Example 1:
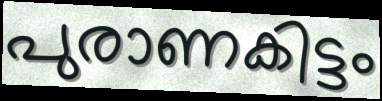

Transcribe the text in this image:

പുരാണകിട്ടം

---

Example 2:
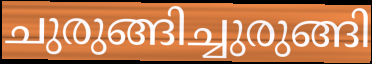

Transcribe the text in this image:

ചുരുങ്ങിച്ചുരുങ്ങി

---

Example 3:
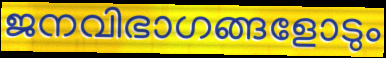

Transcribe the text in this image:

ജനവിഭാഗങ്ങളോടും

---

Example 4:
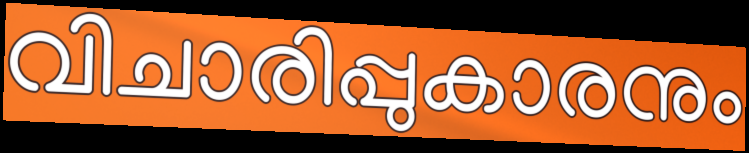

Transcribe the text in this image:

വിചാരിപ്പുകാരനും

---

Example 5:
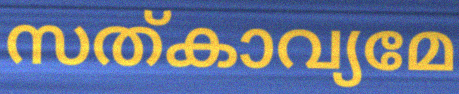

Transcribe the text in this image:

സത്കാവ്യമേ